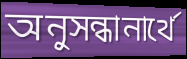
অনুসন্ধানার্থে